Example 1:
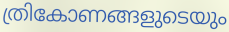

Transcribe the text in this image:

ത്രികോണങ്ങളുടെയും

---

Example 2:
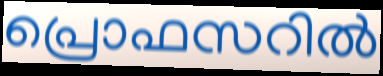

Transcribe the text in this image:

പ്രൊഫസറിൽ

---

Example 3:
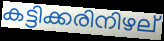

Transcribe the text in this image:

കട്ടിക്കരിനിഴല്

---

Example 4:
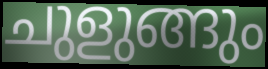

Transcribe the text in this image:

ചുളുങ്ങും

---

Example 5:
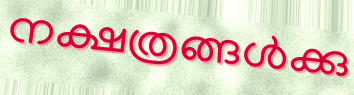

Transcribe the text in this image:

നക്ഷത്രങ്ങൾക്കു